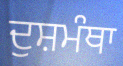
ਦੁਸ਼ਮੰਥਾ